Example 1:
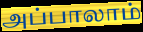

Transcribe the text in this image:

அப்பாலாம்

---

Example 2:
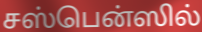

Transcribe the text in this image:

சஸ்பென்ஸில்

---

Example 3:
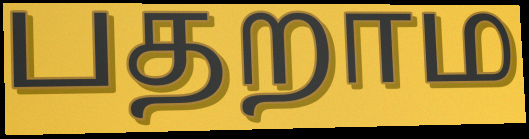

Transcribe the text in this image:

பதறாம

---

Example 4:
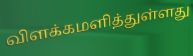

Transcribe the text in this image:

விளக்கமளித்துள்ளது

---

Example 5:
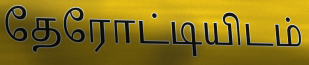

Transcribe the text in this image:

தேரோட்டியிடம்